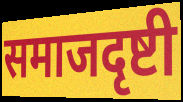
समाजदृष्टी